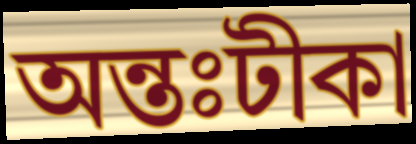
অন্তঃটীকা